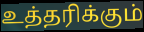
உத்தரிக்கும்